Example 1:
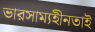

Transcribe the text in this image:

ভারসাম্যহীনতাই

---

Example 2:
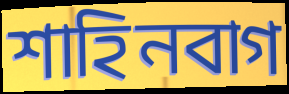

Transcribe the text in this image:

শাহিনবাগ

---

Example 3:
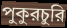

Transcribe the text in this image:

পুকুরচুরি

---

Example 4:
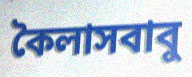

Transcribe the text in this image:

কৈলাসবাবু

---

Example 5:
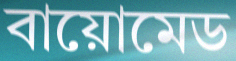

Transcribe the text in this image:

বায়োমেড